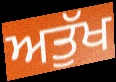
ਅਤੁੱਖ